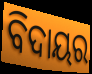
ବିଦାୟର